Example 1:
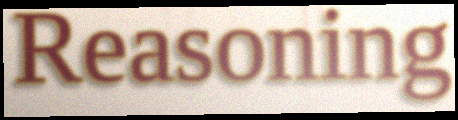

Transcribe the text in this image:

Reasoning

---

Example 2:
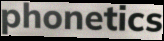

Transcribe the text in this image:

phonetics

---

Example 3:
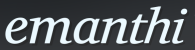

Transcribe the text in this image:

emanthi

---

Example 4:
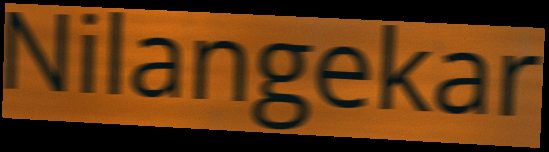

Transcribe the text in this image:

Nilangekar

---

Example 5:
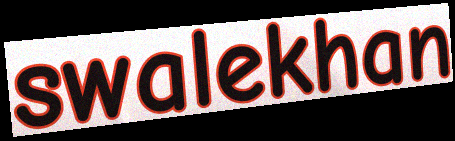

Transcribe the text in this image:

swalekhan